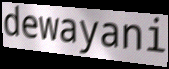
dewayani